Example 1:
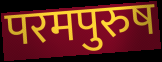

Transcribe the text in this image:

परमपुरुष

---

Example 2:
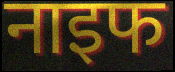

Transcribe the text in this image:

नाइफ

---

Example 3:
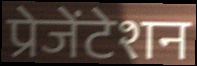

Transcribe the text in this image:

प्रेजेंटेशन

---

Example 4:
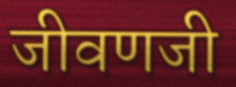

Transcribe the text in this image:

जीवणजी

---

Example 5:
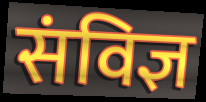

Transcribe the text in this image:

संविज्ञ